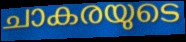
ചാകരയുടെ